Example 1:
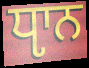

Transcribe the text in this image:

ਧੵਾਨ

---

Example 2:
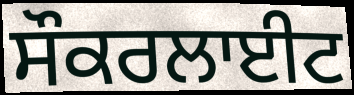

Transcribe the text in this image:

ਸੌਕਰਲਾਈਟ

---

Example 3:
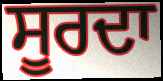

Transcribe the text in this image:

ਸੂਰਦਾ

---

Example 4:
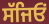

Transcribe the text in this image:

ਸੱਜਿਓਂ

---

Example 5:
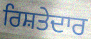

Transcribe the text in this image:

ਰਿਸ਼ਤੇਦਾਰ